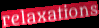
relaxations